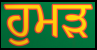
ਹੁਮੜ